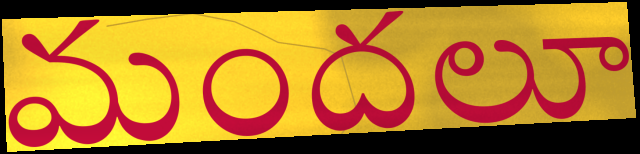
మందలూ